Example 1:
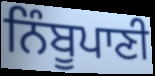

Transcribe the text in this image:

ਨਿੰਬੂਪਾਣੀ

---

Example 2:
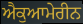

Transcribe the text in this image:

ਐਕੁਆਮੇਰੀਨ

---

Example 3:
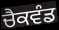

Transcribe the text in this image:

ਚੈਕਵੰਡ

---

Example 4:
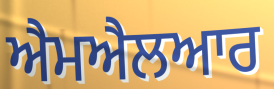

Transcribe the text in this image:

ਐਮਐਲਆਰ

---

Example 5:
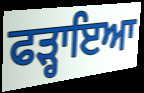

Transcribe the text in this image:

ਫੜ੍ਹਾਇਆ